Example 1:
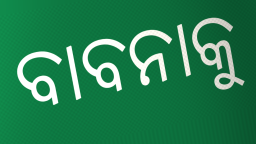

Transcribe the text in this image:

ବାବନାକୁ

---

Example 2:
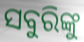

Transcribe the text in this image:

ସବୁରିଙ୍କୁ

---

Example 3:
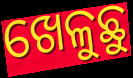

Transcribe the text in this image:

ଖେଳୁଛୁ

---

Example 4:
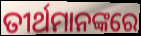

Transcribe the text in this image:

ତୀର୍ଥମାନଙ୍କରେ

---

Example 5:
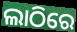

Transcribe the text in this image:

ଲାଠିରେ